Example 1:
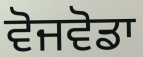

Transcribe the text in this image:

ਵੋਜਵੋਡਾ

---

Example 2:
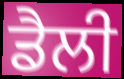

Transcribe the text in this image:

ਡੈਲੀ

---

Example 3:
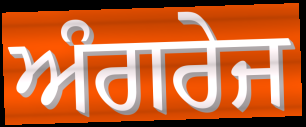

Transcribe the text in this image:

ਅੰਗਰੇਜ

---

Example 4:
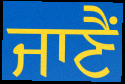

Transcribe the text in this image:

ਜਾਣੈਂ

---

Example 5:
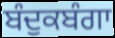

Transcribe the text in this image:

ਬੰਦੁਕਬੰਗਾ